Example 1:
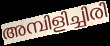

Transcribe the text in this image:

അമ്പിളിച്ചിരി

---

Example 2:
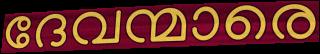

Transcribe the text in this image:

ദേവന്മാരെ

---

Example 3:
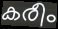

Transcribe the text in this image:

കരീം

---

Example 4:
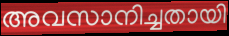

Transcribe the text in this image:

അവസാനിച്ചതായി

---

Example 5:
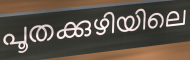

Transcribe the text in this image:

പൂതക്കുഴിയിലെ